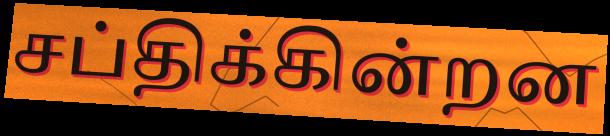
சப்திக்கின்றன